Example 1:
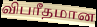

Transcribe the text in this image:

விபரீதமான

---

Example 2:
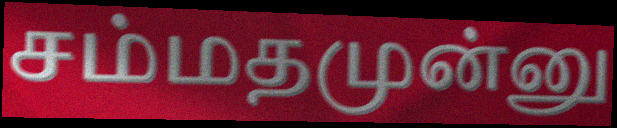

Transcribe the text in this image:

சம்மதமுன்னு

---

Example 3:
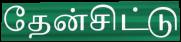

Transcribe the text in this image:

தேன்சிட்டு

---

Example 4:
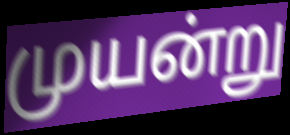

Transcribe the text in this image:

முயன்று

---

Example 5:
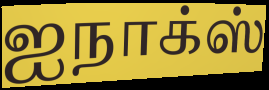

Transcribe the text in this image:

ஐநாக்ஸ்